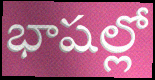
భాషల్లో